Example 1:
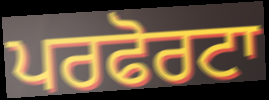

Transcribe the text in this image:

ਪਰਫੋਰਟਾ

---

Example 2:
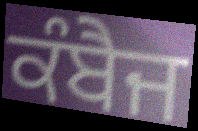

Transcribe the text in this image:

ਕੰਬੈਜ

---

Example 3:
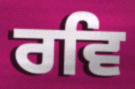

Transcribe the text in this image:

ਰਵਿ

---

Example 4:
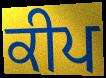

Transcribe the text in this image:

ਕੀਪ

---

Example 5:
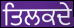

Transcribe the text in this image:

ਤਿਲਕਦੇ